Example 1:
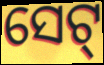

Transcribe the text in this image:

ସେଟ୍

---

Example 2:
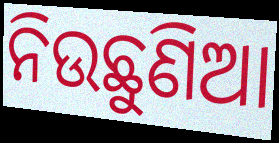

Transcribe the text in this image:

ନିଉଛୁଣିଆ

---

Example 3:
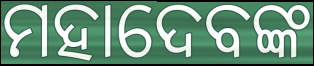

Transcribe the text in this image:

ମହାଦେବଙ୍କ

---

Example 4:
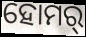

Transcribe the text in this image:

ହୋମର୍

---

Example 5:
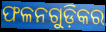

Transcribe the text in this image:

ଫଳନଗୁଡ଼ିକର